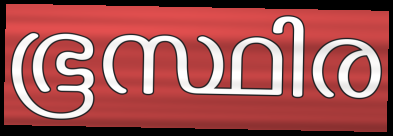
ഭൂസ്ഥിര